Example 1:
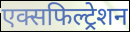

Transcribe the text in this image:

एक्सफिल्ट्रेशन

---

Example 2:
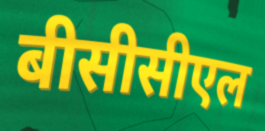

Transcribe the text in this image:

बीसीसीएल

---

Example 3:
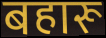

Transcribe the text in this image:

बहारू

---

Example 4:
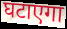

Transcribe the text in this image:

घटाएगा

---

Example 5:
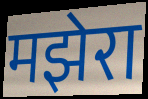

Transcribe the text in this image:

मझेरा